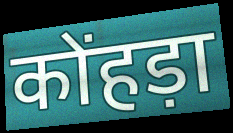
कोंहड़ा